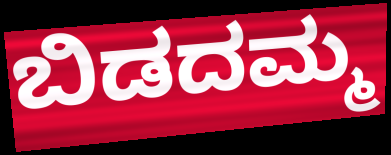
ಬಿಡದಮ್ಮ